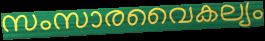
സംസാരവൈകല്യം